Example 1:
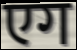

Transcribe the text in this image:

एग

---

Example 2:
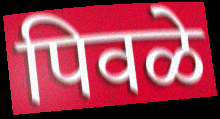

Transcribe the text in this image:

पिवळे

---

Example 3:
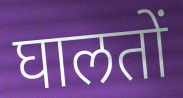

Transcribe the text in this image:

घालतों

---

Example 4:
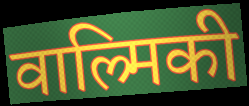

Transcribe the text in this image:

वाल्मिकी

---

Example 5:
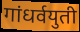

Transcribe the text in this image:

गांधर्वयुती